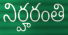
నిర్హరంతి